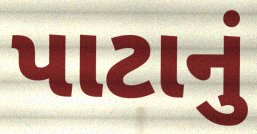
પાટાનું